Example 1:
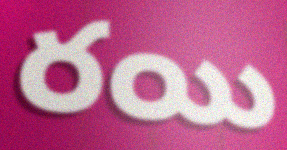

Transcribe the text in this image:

రయి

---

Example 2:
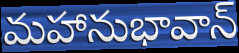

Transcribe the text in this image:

మహానుభావాన్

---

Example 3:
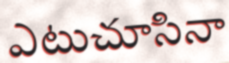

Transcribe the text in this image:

ఎటుచూసినా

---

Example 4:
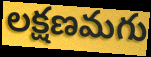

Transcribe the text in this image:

లక్షణమగు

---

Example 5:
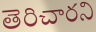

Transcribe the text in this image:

తెరిచారని